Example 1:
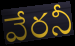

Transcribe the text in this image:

వేరనీ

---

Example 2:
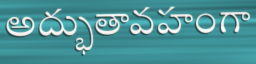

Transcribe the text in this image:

అద్భుతావహంగా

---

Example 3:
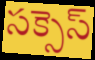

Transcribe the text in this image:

సక్సెస్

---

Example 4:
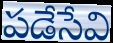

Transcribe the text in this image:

పడేసేవి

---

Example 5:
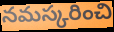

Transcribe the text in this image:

నమస్కరించి